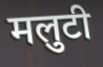
मलुटी